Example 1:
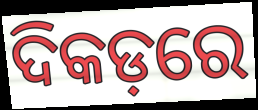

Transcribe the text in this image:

ଦିକଡ଼ରେ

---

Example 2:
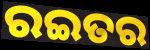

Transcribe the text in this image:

ରଇତର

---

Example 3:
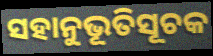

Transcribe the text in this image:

ସହାନୁଭୂତିସୂଚକ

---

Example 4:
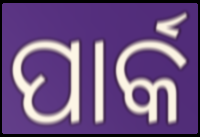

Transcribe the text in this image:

ପାର୍କ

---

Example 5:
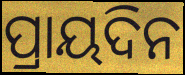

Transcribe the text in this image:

ପ୍ରାୟଦିନ